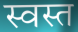
स्वस्त